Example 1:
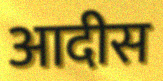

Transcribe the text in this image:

आदीस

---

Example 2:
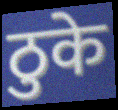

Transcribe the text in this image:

ठुके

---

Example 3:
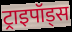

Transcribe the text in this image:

ट्राइपॉड्स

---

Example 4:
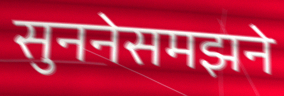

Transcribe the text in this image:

सुननेसमझने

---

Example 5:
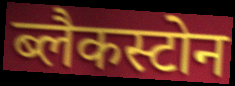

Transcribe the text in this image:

ब्लैकस्टोन